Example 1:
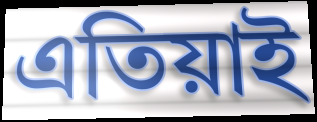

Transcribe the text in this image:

এতিয়াই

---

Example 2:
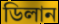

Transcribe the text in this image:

ডিলান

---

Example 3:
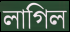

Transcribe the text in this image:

লাগিল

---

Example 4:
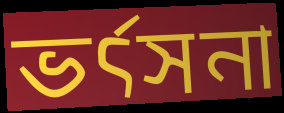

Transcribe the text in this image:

ভৰ্ৎসনা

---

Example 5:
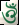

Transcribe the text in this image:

ঔঁ